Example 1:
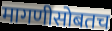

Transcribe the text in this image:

मागणीसोबतच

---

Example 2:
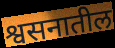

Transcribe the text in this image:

श्वसनातील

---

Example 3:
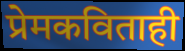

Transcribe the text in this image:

प्रेमकविताही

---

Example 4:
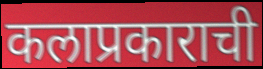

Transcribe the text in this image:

कलाप्रकाराची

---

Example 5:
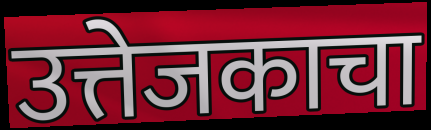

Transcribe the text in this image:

उत्तेजकाचा